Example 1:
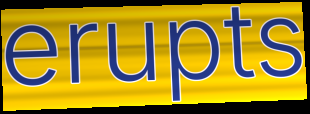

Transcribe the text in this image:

erupts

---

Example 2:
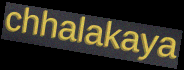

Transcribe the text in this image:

chhalakaya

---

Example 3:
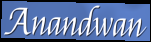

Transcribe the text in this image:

Anandwan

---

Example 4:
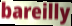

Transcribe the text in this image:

bareilly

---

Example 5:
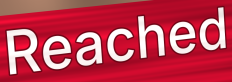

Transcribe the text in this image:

Reached